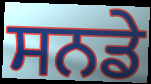
ਸਨਡੇ